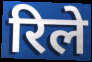
रिले